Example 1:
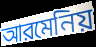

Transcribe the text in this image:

আরমেনিয়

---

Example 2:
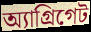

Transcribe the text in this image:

অ্যাগ্রিগেট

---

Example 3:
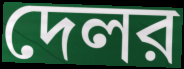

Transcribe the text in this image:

দেলর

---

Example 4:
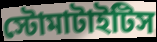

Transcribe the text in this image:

স্টোমাটাইটিস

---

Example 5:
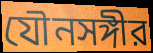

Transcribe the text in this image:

যৌনসঙ্গীর